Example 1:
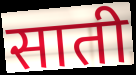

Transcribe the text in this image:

साती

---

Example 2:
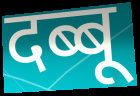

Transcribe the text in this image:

दब्बू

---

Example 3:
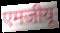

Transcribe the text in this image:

एमजीयू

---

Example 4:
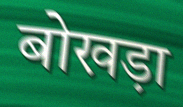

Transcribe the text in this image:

बोखड़ा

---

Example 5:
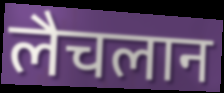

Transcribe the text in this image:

लैचलान